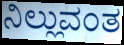
ನಿಲ್ಲುವಂತ